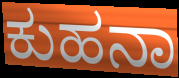
ಕುಹನಾ